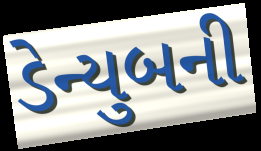
ડેન્યુબની